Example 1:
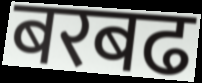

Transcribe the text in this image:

बरबढ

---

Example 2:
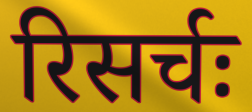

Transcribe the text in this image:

रिसर्चः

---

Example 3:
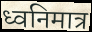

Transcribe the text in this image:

ध्वनिमात्र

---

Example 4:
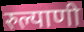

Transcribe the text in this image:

रुल्याणी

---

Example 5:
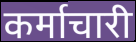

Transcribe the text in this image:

कर्माचारी